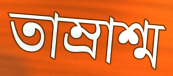
তাম্রাশ্ম